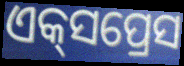
ଏକ୍‌ସପ୍ରେସ